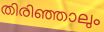
തിരിഞ്ഞാലും